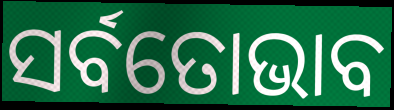
ସର୍ବତୋଭାବ